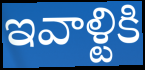
ఇవాళ్టికి